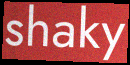
shaky